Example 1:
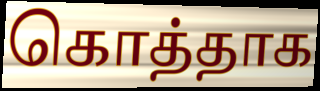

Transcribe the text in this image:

கொத்தாக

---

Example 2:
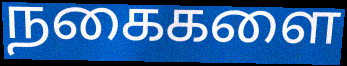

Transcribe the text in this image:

நகைகளை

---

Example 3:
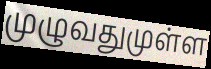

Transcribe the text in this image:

முழுவதுமுள்ள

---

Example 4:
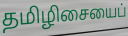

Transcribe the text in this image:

தமிழிசையைப்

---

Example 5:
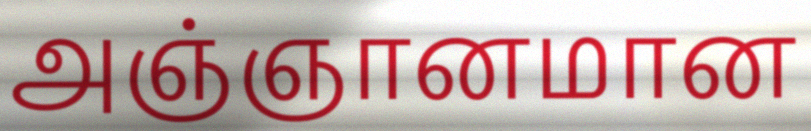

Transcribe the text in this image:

அஞ்ஞானமான